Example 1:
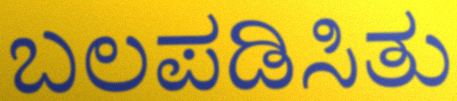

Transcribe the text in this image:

ಬಲಪಡಿಸಿತು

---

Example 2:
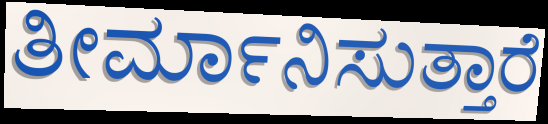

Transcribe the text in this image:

ತೀರ್ಮಾನಿಸುತ್ತಾರೆ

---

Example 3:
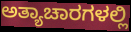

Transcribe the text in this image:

ಅತ್ಯಾಚಾರಗಳಲ್ಲಿ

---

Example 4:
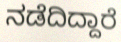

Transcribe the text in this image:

ನಡೆದಿದ್ದಾರೆ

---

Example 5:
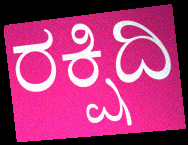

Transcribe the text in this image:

ರಕ್ಷಿದಿ